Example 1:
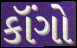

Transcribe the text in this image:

કૉંગો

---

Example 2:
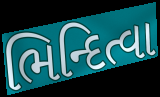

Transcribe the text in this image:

ભિન્દિત્વા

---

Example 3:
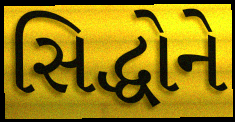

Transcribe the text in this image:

સિદ્ધોને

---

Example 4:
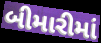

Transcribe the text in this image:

બીમારીમાં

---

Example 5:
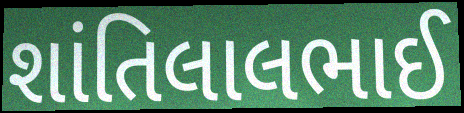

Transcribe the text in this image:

શાંતિલાલભાઈ